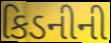
કિડનીની